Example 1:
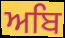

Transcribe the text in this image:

ਅਬਿ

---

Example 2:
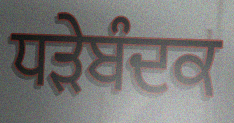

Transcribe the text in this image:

ਧੜੇਬੰਦਕ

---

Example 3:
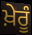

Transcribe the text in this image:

ਖ਼ੇਰੂੰ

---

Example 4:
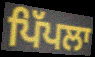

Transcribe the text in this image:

ਪਿੱਪਲਾ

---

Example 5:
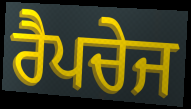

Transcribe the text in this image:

ਰੈਪਚੇਜ